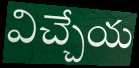
విచ్చేయ